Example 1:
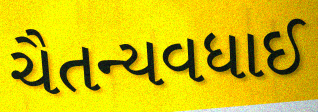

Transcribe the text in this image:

ચૈતન્યવધાઈ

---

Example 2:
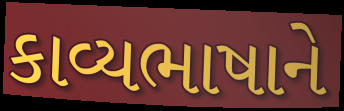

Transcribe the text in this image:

કાવ્યભાષાને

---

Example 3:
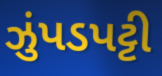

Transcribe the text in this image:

ઝુંપડપટ્ટી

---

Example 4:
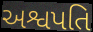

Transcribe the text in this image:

અશ્વપતિ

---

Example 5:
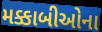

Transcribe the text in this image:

મક્કાબીઓના